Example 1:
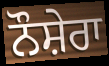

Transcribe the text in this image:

ਨੌਸ਼ੇਰਾ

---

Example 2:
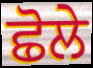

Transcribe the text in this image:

ਛੋਲੇ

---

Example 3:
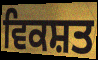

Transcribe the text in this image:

ਵਿਕਸ਼ਤ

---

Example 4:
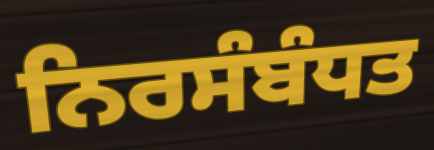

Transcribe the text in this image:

ਨਿਰਸੰਬੰਧਤ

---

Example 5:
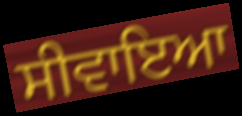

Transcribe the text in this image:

ਸੀਵਾਇਆ